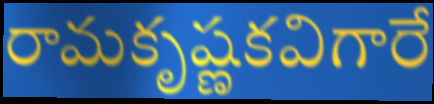
రామకృష్ణకవిగారే